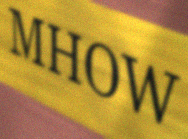
MHOW